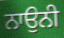
ਨਾਉਨੀ